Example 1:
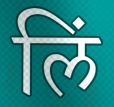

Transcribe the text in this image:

लिं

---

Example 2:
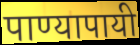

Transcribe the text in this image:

पाण्यापायी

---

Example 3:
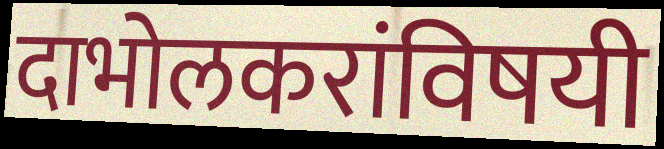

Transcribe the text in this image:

दाभोलकरांविषयी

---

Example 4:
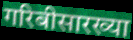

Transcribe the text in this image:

गरिबीसारख्या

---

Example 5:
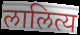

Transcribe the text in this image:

लालित्य